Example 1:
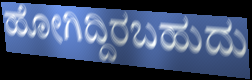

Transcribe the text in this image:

ಹೋಗಿದ್ದಿರಬಹುದು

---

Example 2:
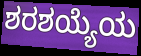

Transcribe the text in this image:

ಶರಶಯ್ಯೆಯ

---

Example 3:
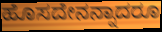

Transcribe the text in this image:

ಹೊಸದೇನನ್ನಾದರೂ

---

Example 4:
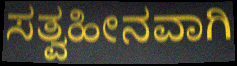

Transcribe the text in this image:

ಸತ್ವಹೀನವಾಗಿ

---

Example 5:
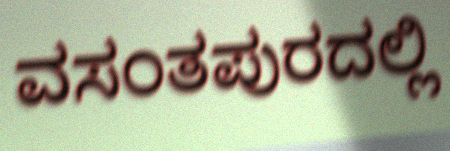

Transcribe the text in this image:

ವಸಂತಪುರದಲ್ಲಿ